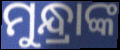
ମୁନ୍ଧ୍ରାଙ୍କ